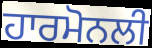
ਹਾਰਮੋਨਲੀ